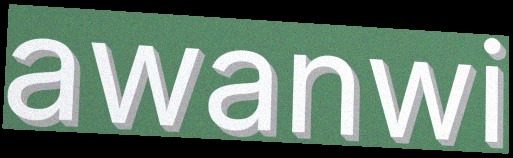
awanwi